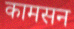
कामसन